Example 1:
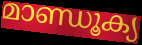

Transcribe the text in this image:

മാണ്ഡൂക്യ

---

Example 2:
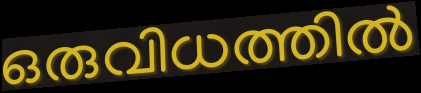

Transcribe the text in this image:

ഒരുവിധത്തിൽ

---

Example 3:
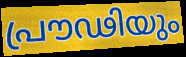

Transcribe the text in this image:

പ്രൗഢിയും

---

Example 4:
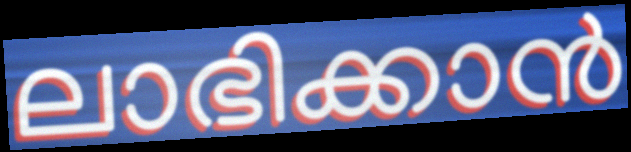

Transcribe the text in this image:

ലാഭിക്കാൻ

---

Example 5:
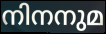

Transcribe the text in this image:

നിനനുമ